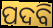
ପଦବି